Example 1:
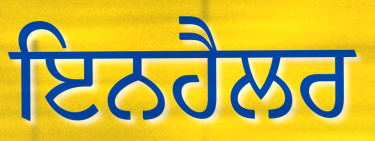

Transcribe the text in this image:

ਇਨਹੈਲਰ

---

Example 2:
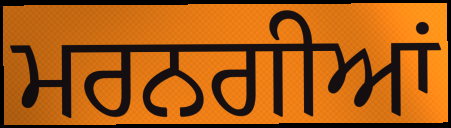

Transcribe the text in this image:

ਮਰਨਗੀਆਂ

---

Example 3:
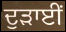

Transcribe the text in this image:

ਦੁੜਾਈਂ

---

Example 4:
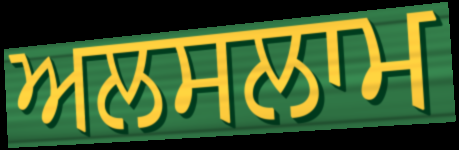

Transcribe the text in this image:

ਅਲਸਲਾਮ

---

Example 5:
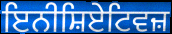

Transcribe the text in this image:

ਇਨੀਸ਼ਿਏਟਿਵਜ਼